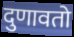
दुणावतो